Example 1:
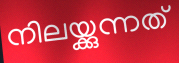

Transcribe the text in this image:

നിലയ്ക്കുന്നത്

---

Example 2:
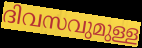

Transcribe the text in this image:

ദിവസവുമുള്ള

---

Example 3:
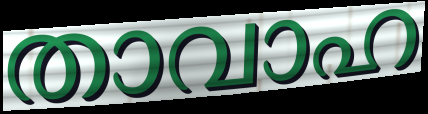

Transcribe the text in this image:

താവാഹ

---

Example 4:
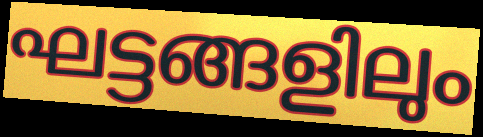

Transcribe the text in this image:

ഘട്ടങ്ങളിലും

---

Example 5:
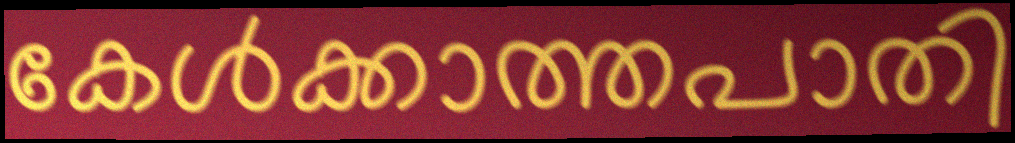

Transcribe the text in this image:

കേൾക്കാത്തപാതി